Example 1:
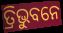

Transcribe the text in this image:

ତ୍ରିଭୁବନେ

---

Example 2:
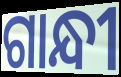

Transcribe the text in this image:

ଗାନ୍ଧୀ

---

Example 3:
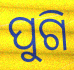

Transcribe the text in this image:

ପୁଗି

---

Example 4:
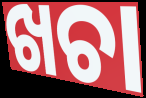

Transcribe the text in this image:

ଖଚା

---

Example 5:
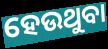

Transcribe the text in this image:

ହେଉଥୁବା